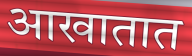
आखातात